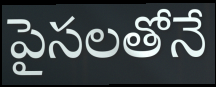
పైసలతోనే